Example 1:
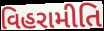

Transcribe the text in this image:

વિહરામીતિ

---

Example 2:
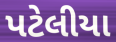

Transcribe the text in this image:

પટેલીયા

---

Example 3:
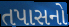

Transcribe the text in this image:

તપાસનો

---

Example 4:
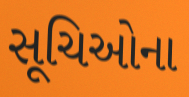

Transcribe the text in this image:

સૂચિઓના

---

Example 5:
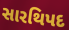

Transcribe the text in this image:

સારથિપદ